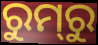
ରୁମ୍‌ରୁ